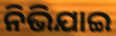
ନିଭିଯାଇ